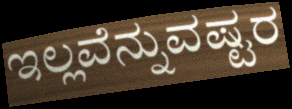
ಇಲ್ಲವೆನ್ನುವಷ್ಟರ